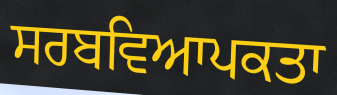
ਸਰਬਵਿਆਪਕਤਾ